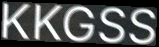
KKGSS